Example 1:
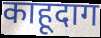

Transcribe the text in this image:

काहूदाग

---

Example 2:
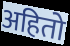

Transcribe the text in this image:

अहितो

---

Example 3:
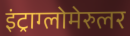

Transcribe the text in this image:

इंट्राग्लोमेरुलर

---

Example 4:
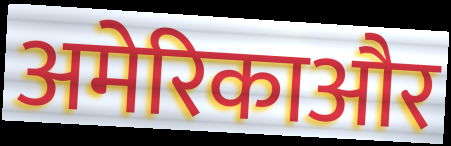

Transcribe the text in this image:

अमेरिकाऔर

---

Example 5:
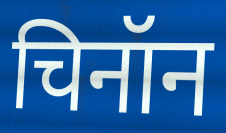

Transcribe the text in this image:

चिनॉन